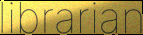
librarian